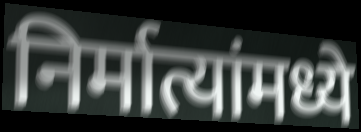
निर्मात्यांमध्ये